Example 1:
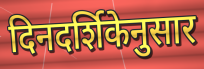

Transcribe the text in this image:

दिनदर्शिकेनुसार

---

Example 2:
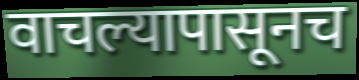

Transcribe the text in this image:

वाचल्यापासूनच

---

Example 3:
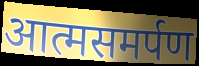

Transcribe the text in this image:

आत्मसमर्पण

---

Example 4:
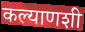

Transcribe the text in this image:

कल्याणशी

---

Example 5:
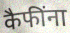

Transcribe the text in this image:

कैफींना